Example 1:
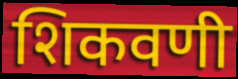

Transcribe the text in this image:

शिकवणी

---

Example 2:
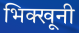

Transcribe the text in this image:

भिक्खूनी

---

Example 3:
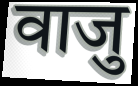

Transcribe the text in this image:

वाजु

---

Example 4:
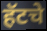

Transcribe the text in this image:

हॅटचे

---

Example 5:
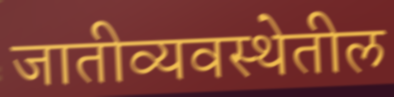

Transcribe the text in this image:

जातीव्यवस्थेतील